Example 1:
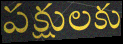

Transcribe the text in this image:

పక్షులకు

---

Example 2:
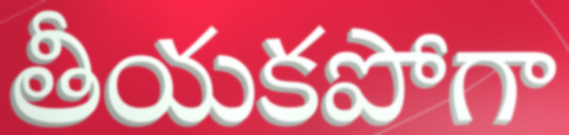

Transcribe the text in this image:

తీయకపోగా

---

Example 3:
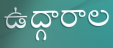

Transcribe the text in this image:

ఉద్గారాల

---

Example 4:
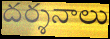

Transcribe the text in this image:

దర్శనాలు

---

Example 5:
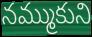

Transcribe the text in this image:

నమ్ముకుని